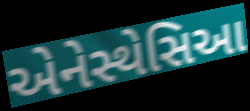
એનેસ્થેસિઆ